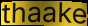
thaake